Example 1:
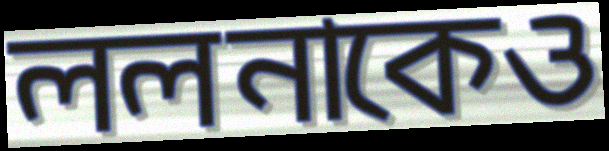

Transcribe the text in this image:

ললনাকেও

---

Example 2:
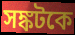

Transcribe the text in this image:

সঙ্কটকে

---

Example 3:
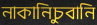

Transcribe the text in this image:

নাকানিচুবানি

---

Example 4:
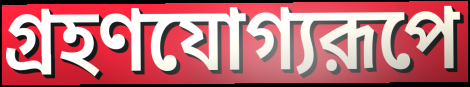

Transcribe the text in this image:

গ্রহণযোগ্যরূপে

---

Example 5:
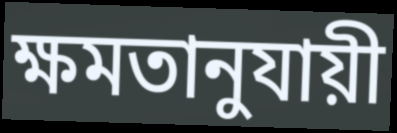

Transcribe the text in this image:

ক্ষমতানুযায়ী